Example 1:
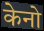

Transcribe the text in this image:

केनो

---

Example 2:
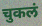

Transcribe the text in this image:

चुकलं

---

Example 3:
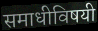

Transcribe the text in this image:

समाधीविषयी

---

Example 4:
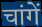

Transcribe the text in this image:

चांगें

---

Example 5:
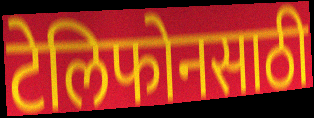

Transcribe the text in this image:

टेलिफोनसाठी